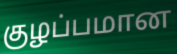
குழப்பமான